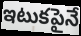
ఇటుకపైనే